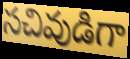
సచివుడిగా